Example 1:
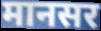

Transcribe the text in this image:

मानसर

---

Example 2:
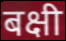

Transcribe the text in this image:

बक्षी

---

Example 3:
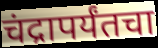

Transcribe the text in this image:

चंद्रापर्यंतचा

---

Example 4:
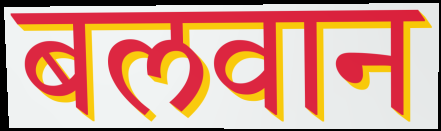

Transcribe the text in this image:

बलवान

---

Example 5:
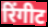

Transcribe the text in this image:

रिंगीट